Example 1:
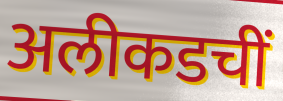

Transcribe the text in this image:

अलीकडचीं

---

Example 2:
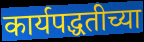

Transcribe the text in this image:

कार्यपद्धतीच्या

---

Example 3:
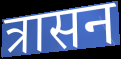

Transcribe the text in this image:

त्रासन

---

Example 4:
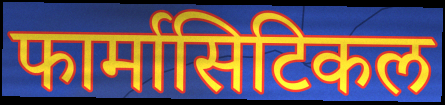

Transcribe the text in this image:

फार्मासिटिकल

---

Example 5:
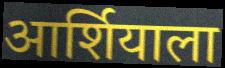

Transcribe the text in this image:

आर्शियाला